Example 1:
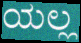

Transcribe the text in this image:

ಯಲ್ಲ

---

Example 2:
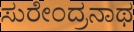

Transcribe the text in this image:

ಸುರೇಂದ್ರನಾಥ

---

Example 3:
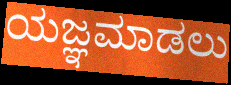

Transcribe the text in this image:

ಯಜ್ಞಮಾಡಲು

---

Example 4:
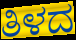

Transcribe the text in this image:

ತಿಳದ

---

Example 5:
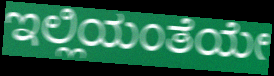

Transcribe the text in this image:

ಇಲ್ಲಿಯಂತೆಯೇ